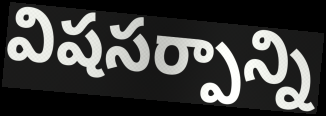
విషసర్పాన్ని